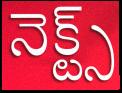
నెక్ట్స్